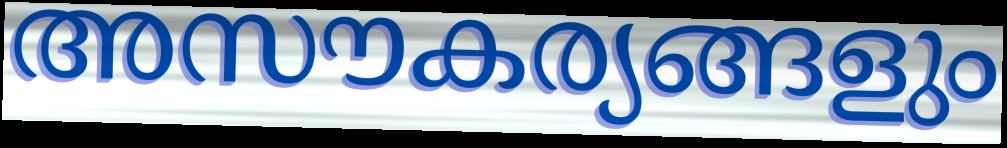
അസൗകര്യങ്ങളും